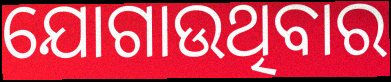
ଯୋଗାଉଥିବାର